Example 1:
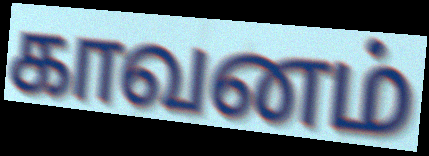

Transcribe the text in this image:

காவனம்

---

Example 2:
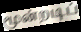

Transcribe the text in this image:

மூன்றடிப்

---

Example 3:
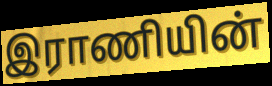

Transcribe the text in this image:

இராணியின்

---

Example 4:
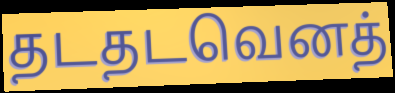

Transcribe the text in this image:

தடதடவெனத்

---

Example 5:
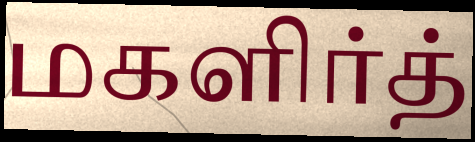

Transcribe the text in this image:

மகளிர்த்